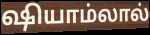
ஷியாம்லால்